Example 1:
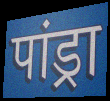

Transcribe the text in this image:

पांड्रा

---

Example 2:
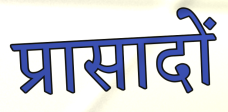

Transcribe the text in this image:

प्रासादों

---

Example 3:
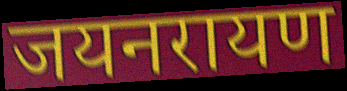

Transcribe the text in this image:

जयनरायण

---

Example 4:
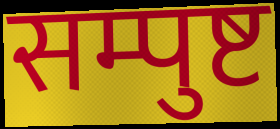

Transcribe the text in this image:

सम्पुष्ट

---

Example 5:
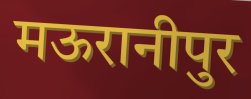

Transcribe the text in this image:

मऊरानीपुर